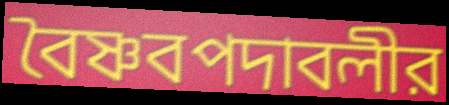
বৈষ্ণবপদাবলীর